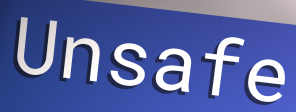
Unsafe